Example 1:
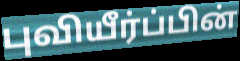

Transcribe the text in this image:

புவியீர்ப்பின்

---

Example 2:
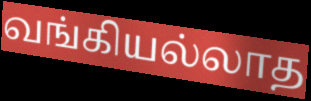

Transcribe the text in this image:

வங்கியல்லாத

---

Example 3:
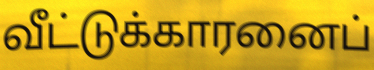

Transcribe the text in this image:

வீட்டுக்காரனைப்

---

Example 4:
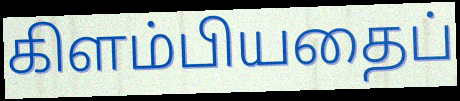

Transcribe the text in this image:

கிளம்பியதைப்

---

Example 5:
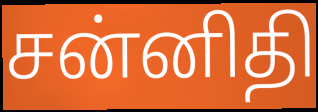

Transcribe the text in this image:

சன்னிதி